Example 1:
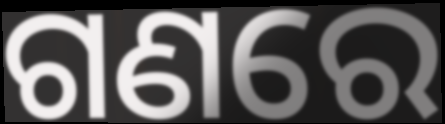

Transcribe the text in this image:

ଗଣରେ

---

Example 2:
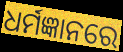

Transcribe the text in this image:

ଧର୍ମଜ୍ଞାନରେ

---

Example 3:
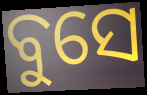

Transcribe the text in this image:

ବୁସେ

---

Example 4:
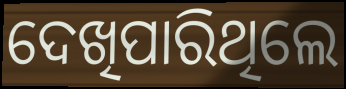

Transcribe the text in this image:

ଦେଖିପାରିଥିଲେ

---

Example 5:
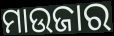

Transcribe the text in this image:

ମାଉଜାର